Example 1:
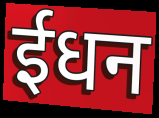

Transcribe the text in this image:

ईधन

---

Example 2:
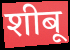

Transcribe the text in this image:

शीबू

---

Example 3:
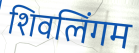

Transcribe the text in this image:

शिवलिंगम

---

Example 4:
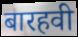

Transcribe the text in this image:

बारहवी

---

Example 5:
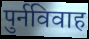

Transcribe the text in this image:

पुर्नविवाह